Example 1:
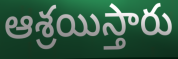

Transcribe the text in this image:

ఆశ్రయిస్తారు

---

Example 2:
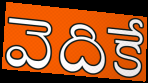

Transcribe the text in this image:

వెదికే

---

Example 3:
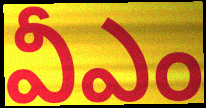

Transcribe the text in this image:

వీఎం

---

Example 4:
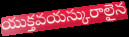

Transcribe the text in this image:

యుక్తవయస్కురాలైన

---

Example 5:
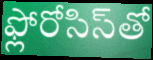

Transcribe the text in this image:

ఫ్లోరోసిస్‌తో